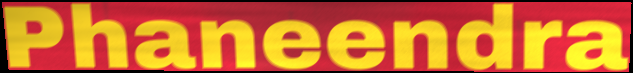
Phaneendra